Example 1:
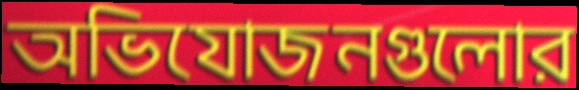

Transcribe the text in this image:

অভিযোজনগুলোর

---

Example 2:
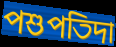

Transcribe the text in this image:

পশুপতিদা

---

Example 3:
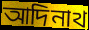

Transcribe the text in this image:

আদিনাথ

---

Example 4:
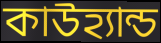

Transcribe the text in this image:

কাউহ্যান্ড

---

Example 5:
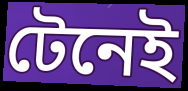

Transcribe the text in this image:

টেনেই